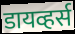
डायव्हर्स